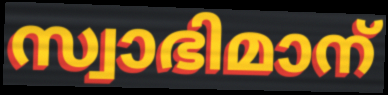
സ്വാഭിമാന്